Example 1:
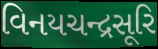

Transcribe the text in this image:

વિનયચન્દ્રસૂરિ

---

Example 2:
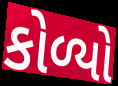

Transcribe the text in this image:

કોળ્યો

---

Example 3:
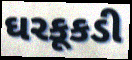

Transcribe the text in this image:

ઘરકૂકડી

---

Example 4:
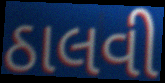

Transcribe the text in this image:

ઠાલવી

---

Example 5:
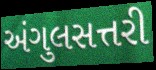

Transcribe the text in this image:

અંગુલસત્તરી